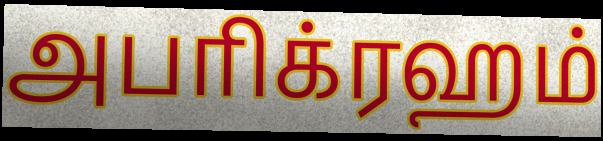
அபரிக்ரஹம்